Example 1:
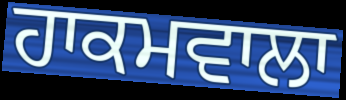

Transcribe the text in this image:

ਹਾਕਮਵਾਲਾ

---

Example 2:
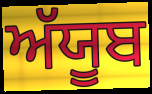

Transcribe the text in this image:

ਅੱਯੂਬ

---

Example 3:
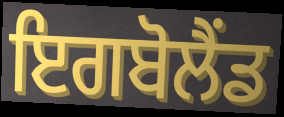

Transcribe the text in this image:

ਇਗਬੋਲੈਂਡ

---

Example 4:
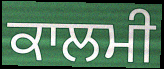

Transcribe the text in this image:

ਕਾਲਮੀ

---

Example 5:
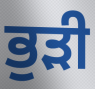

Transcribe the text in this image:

ਭੁੜੀ